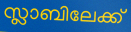
സ്ലാബിലേക്ക്